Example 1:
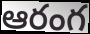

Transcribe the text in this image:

ఆరంగ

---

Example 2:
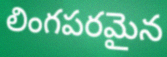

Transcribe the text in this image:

లింగపరమైన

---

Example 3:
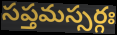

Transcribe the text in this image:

సప్తమస్సర్గః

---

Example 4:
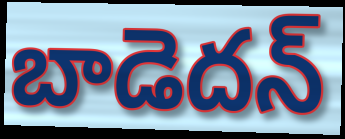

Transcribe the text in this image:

బాడెదన్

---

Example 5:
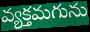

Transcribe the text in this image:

వ్యక్తమగును